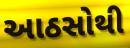
આઠસોથી